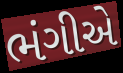
ભંગીએ